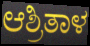
ಆಶ್ರಿತಾಳ